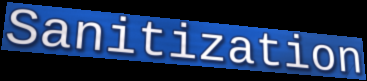
Sanitization